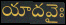
యాదవైః